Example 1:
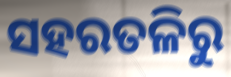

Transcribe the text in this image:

ସହରତଳିରୁ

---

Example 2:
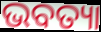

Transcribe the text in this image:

ଭବତ୍ୟା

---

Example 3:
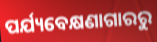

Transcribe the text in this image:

ପର୍ଯ୍ୟବେକ୍ଷଣାଗାରରୁ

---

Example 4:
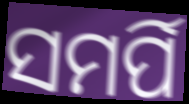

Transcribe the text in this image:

ସମର୍ପି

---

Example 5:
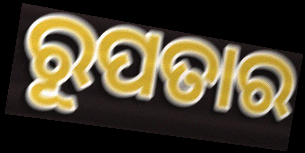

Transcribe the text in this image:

ରୂପତାର